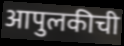
आपुलकीची